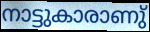
നാട്ടുകാരാണു്